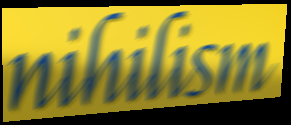
nihilism